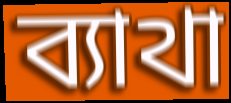
ব্যাথা